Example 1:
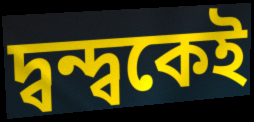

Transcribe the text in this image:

দ্বন্দ্বকেই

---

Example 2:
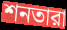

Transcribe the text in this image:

শনতারা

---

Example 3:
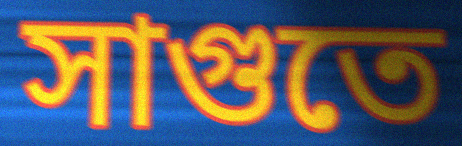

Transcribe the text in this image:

সাগুতে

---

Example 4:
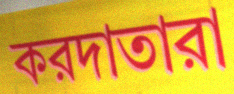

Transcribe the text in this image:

করদাতারা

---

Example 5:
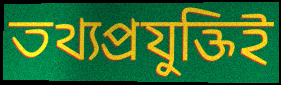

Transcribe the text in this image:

তথ্যপ্রযুক্তিই